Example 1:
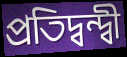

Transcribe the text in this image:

প্ৰতিদ্বন্দ্বী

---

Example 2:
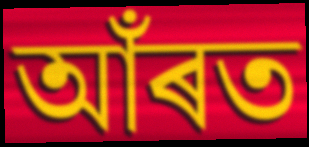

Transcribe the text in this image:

আঁৰত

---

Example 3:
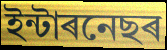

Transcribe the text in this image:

ইন্টাৰনেছৰ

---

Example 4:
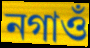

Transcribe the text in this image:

নগাওঁ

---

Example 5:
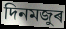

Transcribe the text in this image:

দিনমজুৰ